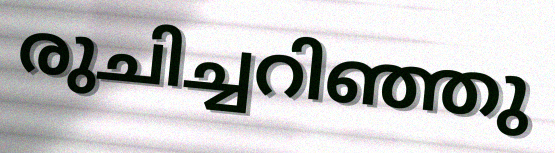
രുചിച്ചറിഞ്ഞു